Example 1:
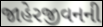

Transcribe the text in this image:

જાહેરજીવનની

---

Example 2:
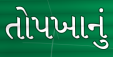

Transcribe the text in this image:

તોપખાનું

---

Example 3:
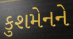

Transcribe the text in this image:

કુશમેનને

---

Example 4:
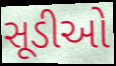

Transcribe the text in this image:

સૂડીઓ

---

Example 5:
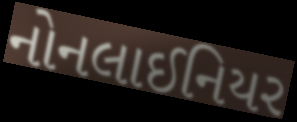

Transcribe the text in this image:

નોનલાઈનિયર